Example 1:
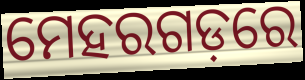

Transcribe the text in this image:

ମେହରଗଡ଼ରେ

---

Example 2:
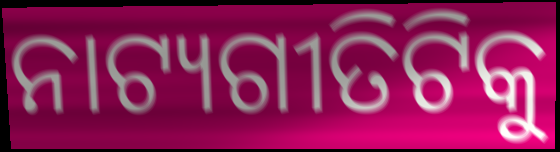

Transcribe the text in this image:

ନାଟ୍ୟଗୀତିଟିକୁ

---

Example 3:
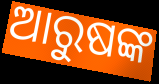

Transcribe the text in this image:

ଆରୁଷଙ୍କ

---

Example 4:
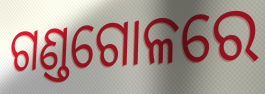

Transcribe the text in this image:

ଗଣ୍ଡଗୋଳରେ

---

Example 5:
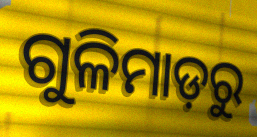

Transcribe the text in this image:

ଗୁଳିମାଡ଼ରୁ